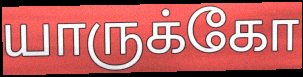
யாருக்கோ